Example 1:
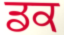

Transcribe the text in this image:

ਡਕ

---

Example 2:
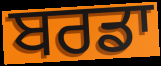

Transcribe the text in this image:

ਬਰਡਾ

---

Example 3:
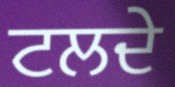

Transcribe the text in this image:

ਟਲਦੇ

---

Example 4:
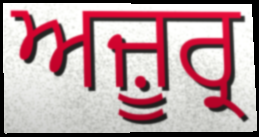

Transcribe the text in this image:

ਅਜ਼ੂਰ੍ਰ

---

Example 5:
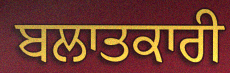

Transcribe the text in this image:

ਬਲਾਤਕਾਰੀ